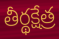
తీర్థక్షేత్ర